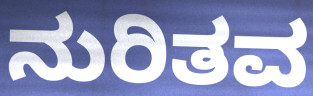
ನುರಿತವ